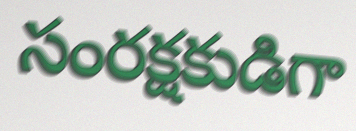
సంరక్షకుడిగా